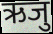
ऋजु